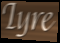
Iyre